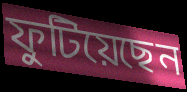
ফুটিয়েছেন